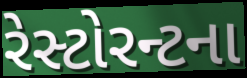
રેસ્ટોરન્ટના